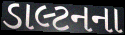
ડાલ્ટનના